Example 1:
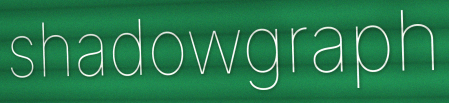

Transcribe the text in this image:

shadowgraph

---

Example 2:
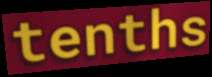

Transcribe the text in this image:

tenths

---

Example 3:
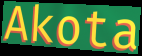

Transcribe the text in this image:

Akota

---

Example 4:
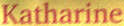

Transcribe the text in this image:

Katharine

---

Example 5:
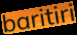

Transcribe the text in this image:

baritiri